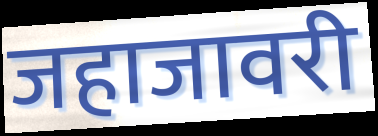
जहाजावरी